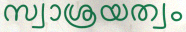
സ്വാശ്രയത്വം